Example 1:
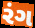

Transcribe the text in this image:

રંગ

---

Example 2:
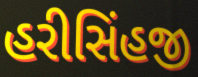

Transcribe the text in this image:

હરીસિંહજી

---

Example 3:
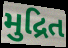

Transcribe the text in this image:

મુદ્રિત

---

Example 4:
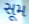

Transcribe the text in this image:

સૂમ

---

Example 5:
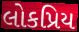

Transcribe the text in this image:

લોકપ્રિય